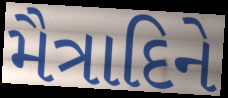
મૈત્રાદિને